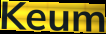
Keum